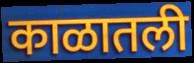
काळातली